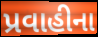
પ્રવાહીના